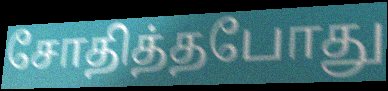
சோதித்தபோது